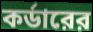
কর্ডারের